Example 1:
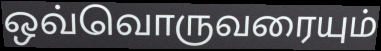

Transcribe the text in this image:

ஒவ்வொருவரையும்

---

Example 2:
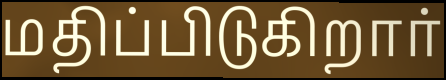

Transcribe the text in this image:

மதிப்பிடுகிறார்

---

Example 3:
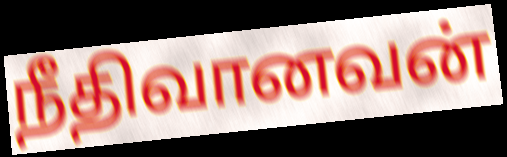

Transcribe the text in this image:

நீதிவானவன்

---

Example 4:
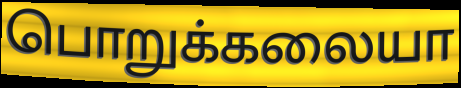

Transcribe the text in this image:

பொறுக்கலையா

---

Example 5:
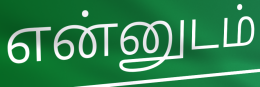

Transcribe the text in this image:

என்னுடம்